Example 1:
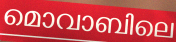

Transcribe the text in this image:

മൊവാബിലെ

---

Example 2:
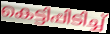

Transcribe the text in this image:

കെട്ടിപ്പിടിച്ച്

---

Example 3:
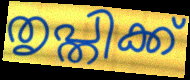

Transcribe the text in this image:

തൃപ്തിക്ക്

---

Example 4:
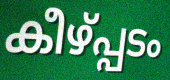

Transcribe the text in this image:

കീഴ്പ്പടം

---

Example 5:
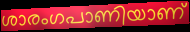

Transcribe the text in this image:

ശാരംഗപാണിയാണ്